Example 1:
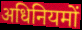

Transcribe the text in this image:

अधिनियमों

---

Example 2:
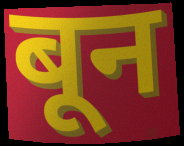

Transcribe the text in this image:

बून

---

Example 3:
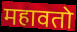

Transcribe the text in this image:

महावतो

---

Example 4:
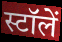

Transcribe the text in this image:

स्टॉलें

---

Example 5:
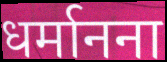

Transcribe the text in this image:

धर्मानना